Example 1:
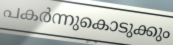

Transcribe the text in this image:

പകർന്നുകൊടുക്കും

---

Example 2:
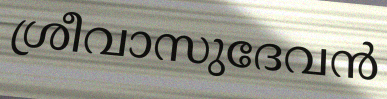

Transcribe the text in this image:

ശ്രീവാസുദേവൻ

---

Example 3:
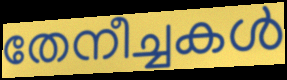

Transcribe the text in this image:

തേനീച്ചകൾ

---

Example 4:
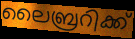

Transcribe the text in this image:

ലൈബ്രറിക്ക്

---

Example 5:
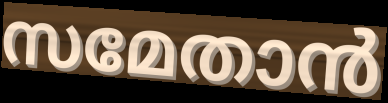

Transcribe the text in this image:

സമേതാൻ